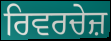
ਰਿਵਰਚੇਜ਼